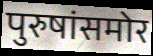
पुरुषांसमोर